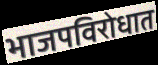
भाजपविरोधात